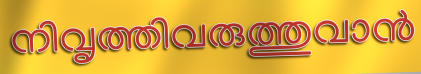
നിവൃത്തിവരുത്തുവാൻ